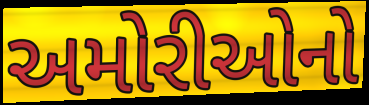
અમોરીઓનો